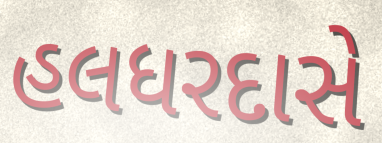
હલધરદાસે